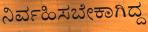
ನಿರ್ವಹಿಸಬೇಕಾಗಿದ್ದ